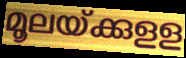
മൂലയ്‌ക്കുളള